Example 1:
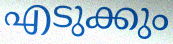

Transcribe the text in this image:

എടുക്കും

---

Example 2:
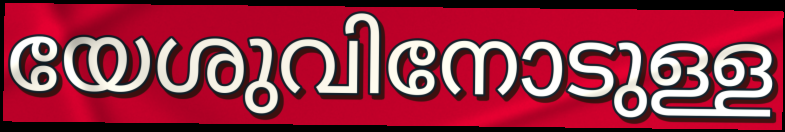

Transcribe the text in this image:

യേശുവിനോടുള്ള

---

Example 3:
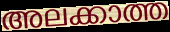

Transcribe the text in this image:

അലക്കാത്ത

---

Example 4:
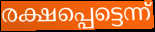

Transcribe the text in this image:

രക്ഷപ്പെട്ടെന്ന്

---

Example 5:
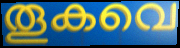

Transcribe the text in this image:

തൂകവെ